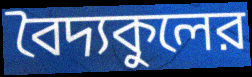
বৈদ্যকুলের